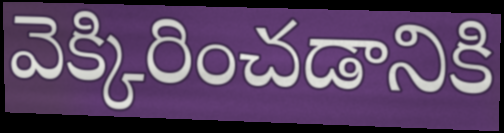
వెక్కిరించడానికి